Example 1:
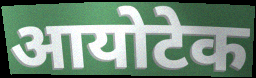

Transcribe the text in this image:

आयोटेक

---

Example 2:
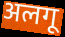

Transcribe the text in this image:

अलगू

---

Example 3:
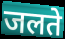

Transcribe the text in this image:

जलते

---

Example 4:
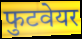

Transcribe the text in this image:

फुटवेयर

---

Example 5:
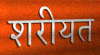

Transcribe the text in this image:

शरीयत